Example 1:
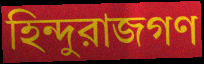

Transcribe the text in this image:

হিন্দুরাজগণ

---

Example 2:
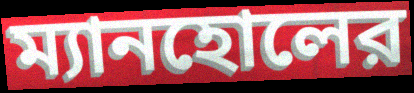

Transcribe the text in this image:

ম্যানহোলের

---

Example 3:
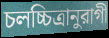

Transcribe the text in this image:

চলচ্চিত্রানুরাগী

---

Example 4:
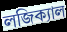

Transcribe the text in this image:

লজিক্যাল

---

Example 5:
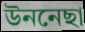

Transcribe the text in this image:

উননেছা